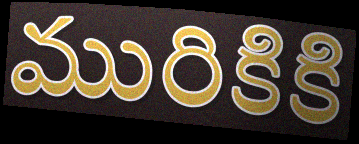
మురికికి